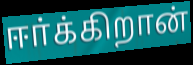
ஈர்க்கிறான்